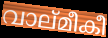
വാല്മീകീ